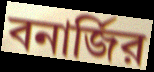
বনার্জির